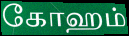
கோஹம்